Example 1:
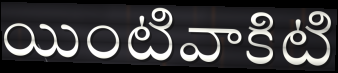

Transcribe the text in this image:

యింటివాకిటి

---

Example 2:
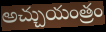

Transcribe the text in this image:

అచ్చుయంత్రం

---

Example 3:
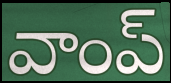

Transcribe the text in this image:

వాంప్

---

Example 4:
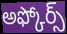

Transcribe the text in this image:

అఫ్కోర్స్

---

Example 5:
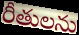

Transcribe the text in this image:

రీతులను